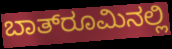
ಬಾತ್‌ರೂಮಿನಲ್ಲಿ